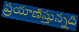
ప్రయాణిస్తున్నది